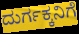
ದುರ್ಗಕ್ಕನಿಗೆ